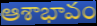
ఆశాభావం